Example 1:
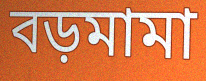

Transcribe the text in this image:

বড়মামা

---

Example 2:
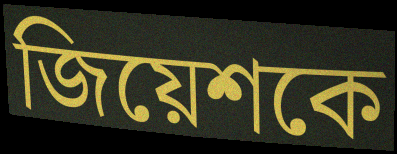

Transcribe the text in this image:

জিয়েশকে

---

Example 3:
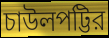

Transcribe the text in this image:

চাউলপট্টির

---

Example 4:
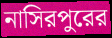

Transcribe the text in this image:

নাসিরপুরের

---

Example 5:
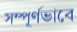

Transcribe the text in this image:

সম্পূর্ণভাবে